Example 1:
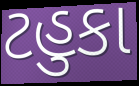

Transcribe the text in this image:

ટહુકા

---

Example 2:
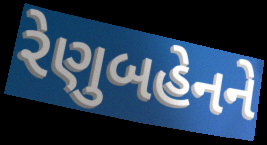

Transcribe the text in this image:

રેણુબહેનને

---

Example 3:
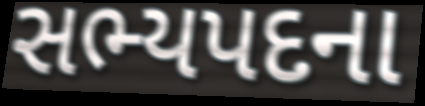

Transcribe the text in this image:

સભ્યપદના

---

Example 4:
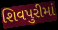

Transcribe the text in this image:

શિવપુરીમાં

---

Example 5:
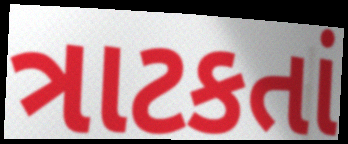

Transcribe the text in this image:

ત્રાટકતાં